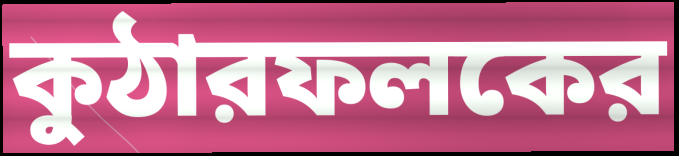
কুঠারফলকের